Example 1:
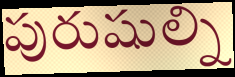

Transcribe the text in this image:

పురుషుల్ని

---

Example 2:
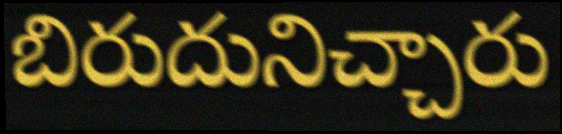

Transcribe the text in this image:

బిరుదునిచ్చారు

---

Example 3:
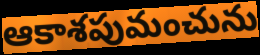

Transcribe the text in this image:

ఆకాశపుమంచును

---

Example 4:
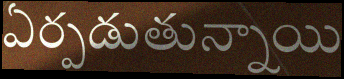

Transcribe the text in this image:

ఏర్పడుతున్నాయి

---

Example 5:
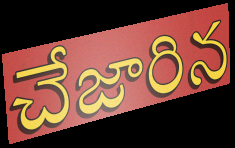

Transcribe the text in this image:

చేజారిన